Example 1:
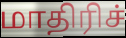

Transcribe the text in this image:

மாதிரிச்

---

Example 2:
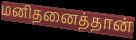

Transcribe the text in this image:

மனிதனைத்தான்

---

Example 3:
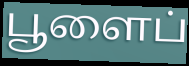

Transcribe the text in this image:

பூளைப்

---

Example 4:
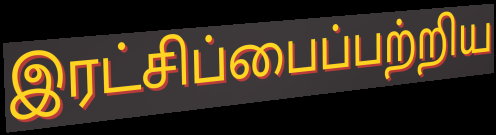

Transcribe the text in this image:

இரட்சிப்பைப்பற்றிய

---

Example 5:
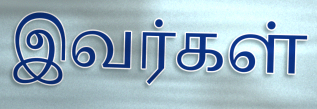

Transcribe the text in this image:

இவர்கள்